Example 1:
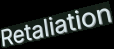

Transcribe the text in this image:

Retaliation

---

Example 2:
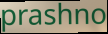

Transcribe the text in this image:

prashno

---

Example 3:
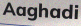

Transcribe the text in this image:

Aaghadi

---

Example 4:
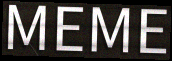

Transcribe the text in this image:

MEME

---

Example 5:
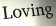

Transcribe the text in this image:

Loving